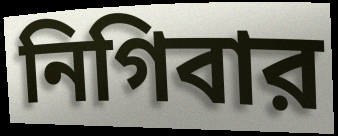
নিগিবার